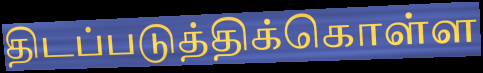
திடப்படுத்திக்கொள்ள